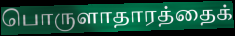
பொருளாதாரத்தைக்